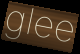
glee